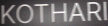
KOTHARI